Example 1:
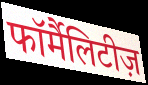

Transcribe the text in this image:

फॉर्मैलिटीज़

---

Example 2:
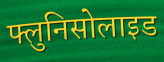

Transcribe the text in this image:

फ्लुनिसोलाइड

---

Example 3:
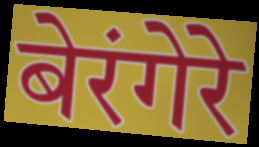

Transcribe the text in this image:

बेरंगेरे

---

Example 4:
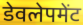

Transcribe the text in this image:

डेवलेपमेंट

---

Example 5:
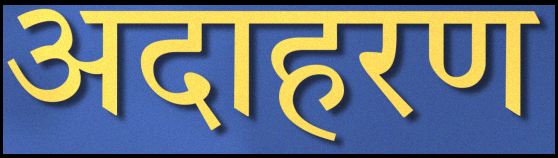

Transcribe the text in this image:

अदाहरण